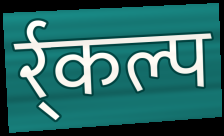
र्र्कल्प